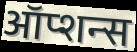
ऑप्शन्स